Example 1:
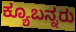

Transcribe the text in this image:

ಕ್ಯೂಬನ್ನರು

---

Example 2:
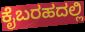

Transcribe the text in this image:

ಕೈಬರಹದಲ್ಲಿ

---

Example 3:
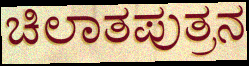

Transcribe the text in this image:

ಚಿಲಾತಪುತ್ರನ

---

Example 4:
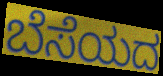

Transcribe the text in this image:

ಬೆಸೆಯದ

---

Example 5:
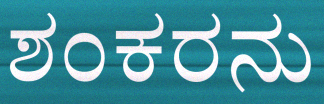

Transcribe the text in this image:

ಶಂಕರನು